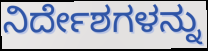
ನಿರ್ದೇಶಗಳನ್ನು